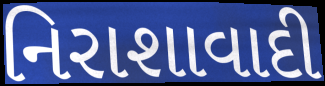
નિરાશાવાદી